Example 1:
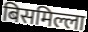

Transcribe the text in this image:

बिसमिल्ला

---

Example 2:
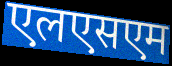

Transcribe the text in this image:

एलएसएम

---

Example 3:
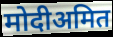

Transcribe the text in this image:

मोदीअमित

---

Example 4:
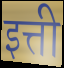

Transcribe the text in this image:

इत्ती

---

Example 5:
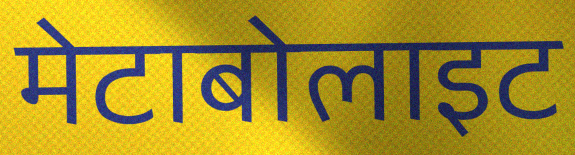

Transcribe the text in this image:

मेटाबोलाइट